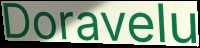
Doravelu